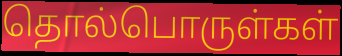
தொல்பொருள்கள்